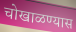
चोखाळण्यास